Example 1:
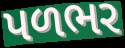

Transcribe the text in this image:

પળભર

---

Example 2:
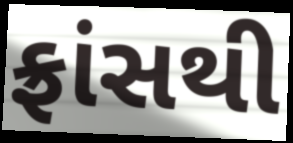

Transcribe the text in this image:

ફ્રાંસથી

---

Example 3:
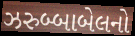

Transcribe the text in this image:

ઝરુબ્બાબેલનો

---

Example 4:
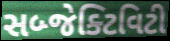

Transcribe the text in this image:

સબ્જેક્ટિવિટી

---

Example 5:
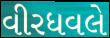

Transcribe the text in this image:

વીરધવલે